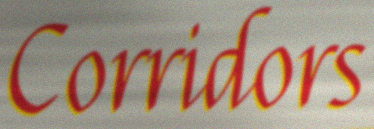
Corridors